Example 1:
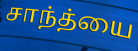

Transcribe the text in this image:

சாந்த்யை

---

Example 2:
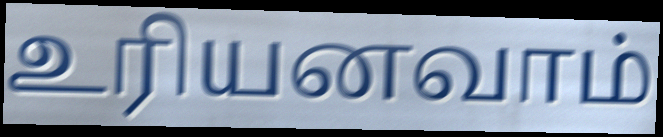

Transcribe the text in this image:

உரியனவாம்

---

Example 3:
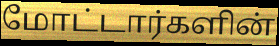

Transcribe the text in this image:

மோட்டார்களின்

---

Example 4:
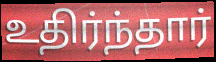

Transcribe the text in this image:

உதிர்ந்தார்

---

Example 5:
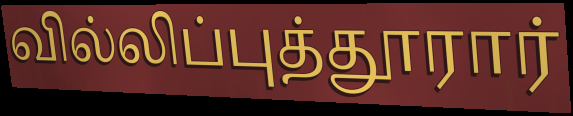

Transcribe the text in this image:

வில்லிப்புத்தூரார்